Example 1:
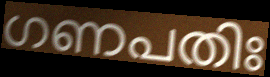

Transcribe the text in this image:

ഗണപതിഃ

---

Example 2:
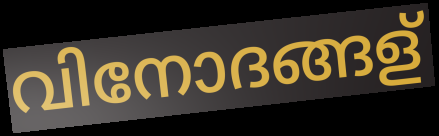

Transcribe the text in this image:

വിനോദങ്ങള്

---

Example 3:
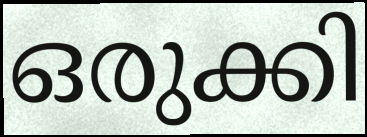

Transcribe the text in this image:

ഒരുക്കി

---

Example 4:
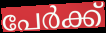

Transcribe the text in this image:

പേർക്ക്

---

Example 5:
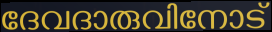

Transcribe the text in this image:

ദേവദാരുവിനോട്